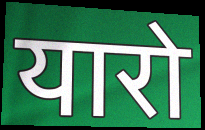
यारो